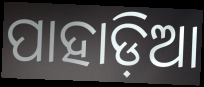
ପାହାଡ଼ିଆ